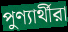
পুণ্যার্থীরা